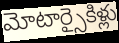
మోటార్సైకిళ్లు